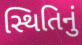
સ્થિતિનું